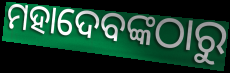
ମହାଦେବଙ୍କଠାରୁ